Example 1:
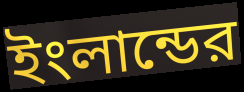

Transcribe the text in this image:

ইংলান্ডের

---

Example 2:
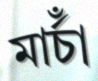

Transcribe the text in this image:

মার্চাঁ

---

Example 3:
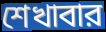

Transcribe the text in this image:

শেখাবার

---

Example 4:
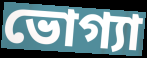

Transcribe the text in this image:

ভোগ্যা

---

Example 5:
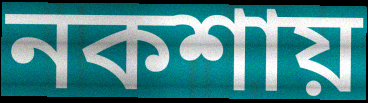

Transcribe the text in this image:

নকশায়